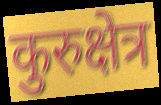
कुरुक्षेत्र